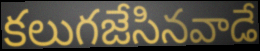
కలుగజేసినవాడే